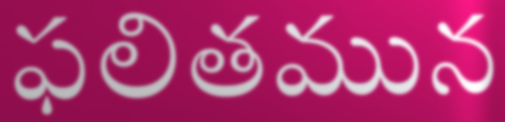
ఫలితమున